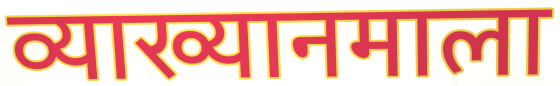
व्याख्यानमाला